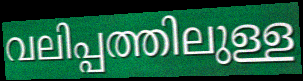
വലിപ്പത്തിലുള്ള